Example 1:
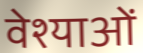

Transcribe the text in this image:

वेश्याओं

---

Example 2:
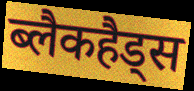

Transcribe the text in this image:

ब्लैकहैड्स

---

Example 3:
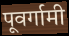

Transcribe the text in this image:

पूवर्गामी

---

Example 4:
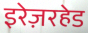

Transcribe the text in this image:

इरेज़रहेड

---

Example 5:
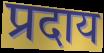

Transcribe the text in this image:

प्रदाय